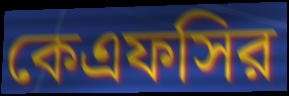
কেএফসির